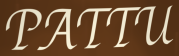
PATTU